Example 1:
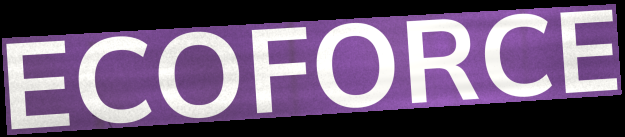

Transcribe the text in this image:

ECOFORCE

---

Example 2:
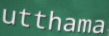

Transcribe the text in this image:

utthama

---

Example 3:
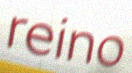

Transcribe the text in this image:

reino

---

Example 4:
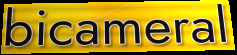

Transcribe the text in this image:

bicameral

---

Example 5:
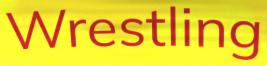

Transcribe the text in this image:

Wrestling